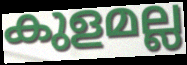
കുളമല്ല